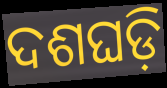
ଦଶଘଡ଼ି